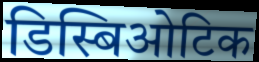
डिस्बिओटिक